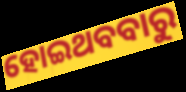
ହୋଇଥବବାରୁ